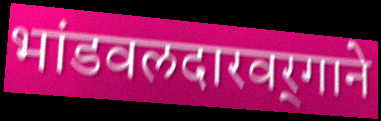
भांडवलदारवर्गाने